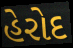
હેરોદ